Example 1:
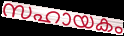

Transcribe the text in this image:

സഹായകം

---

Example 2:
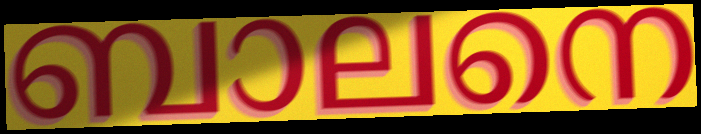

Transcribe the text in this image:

ബാലനെ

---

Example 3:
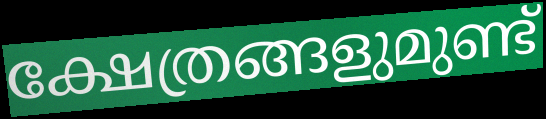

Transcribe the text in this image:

ക്ഷേത്രങ്ങളുമുണ്ട്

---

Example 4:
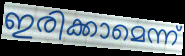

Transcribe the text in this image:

ഇരിക്കാമെന്ന്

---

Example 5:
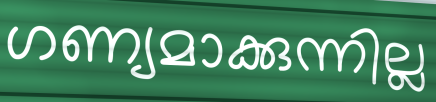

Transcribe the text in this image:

ഗണ്യമാക്കുന്നില്ല